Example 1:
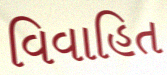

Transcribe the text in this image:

વિવાહિત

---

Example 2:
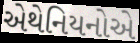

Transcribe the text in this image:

એથેનિયનોએ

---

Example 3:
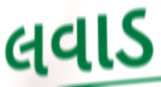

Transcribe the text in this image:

લવાડ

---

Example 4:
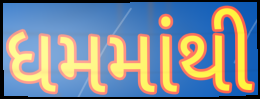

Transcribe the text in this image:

ધમમાંથી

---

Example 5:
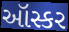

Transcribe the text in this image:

ઑસ્કર